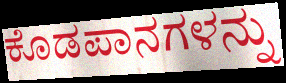
ಕೊಡಪಾನಗಳನ್ನು